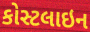
કોસ્ટલાઇન